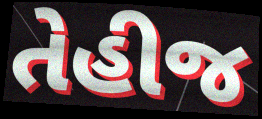
તેહીજ